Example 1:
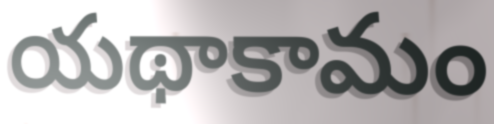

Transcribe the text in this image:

యథాకామం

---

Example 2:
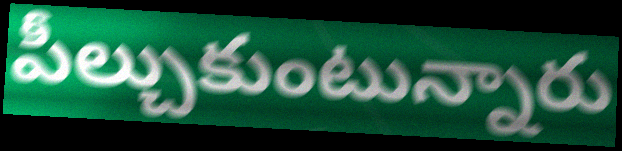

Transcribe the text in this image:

పీల్చుకుంటున్నారు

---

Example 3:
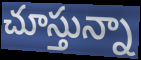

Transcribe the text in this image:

చూస్తున్నా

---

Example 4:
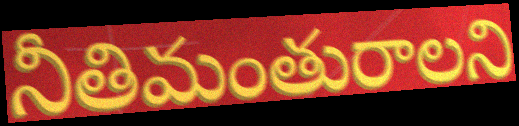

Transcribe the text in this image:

నీతిమంతురాలని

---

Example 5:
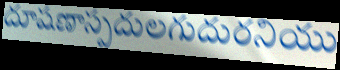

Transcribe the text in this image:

దూషణాస్పదులగుదురనియు